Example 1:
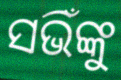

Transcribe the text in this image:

ସଭିଁଙ୍କୁ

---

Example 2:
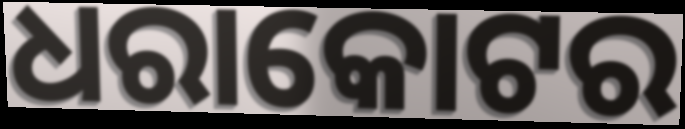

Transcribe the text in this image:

ଧରାକୋଟର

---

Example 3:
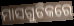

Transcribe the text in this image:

ମାସଗୁଡିକରେ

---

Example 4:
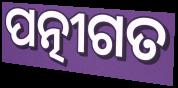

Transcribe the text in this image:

ପତ୍ନୀଗତ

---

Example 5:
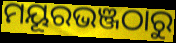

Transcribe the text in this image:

ମୟୂରଭଞ୍ଜଠାରୁ